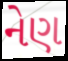
નેણ